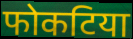
फोकटिया